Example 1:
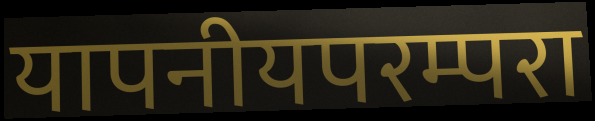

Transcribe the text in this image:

यापनीयपरम्परा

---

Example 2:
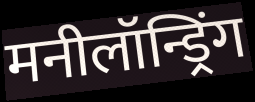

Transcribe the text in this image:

मनीलॉन्ड्रिंग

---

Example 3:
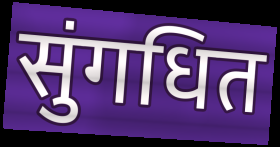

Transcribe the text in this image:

सुंगधित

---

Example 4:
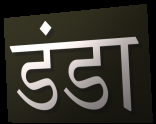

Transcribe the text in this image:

डंडा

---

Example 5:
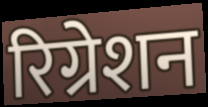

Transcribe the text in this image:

रिग्रेशन